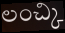
లంచ్కి